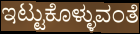
ಇಟ್ಟುಕೊಳ್ಳುವಂತೆ